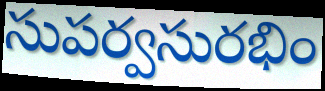
సుపర్వసురభిం